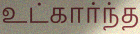
உட்கார்ந்த